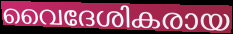
വൈദേശികരായ